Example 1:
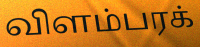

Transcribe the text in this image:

விளம்பரக்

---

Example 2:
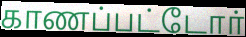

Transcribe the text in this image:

காணப்பட்டோர்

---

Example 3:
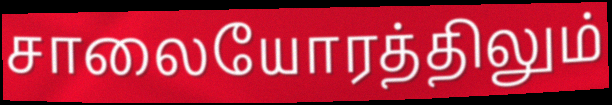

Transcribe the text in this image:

சாலையோரத்திலும்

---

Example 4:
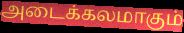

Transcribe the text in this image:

அடைக்கலமாகும்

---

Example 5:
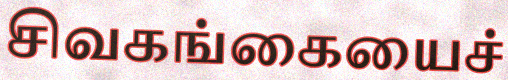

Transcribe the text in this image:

சிவகங்கையைச்